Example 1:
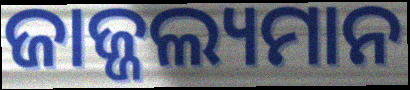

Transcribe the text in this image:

ଜାଜ୍ଜଲ୍ୟମାନ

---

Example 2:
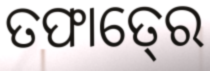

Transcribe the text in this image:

ତଫାତ୍‍ରେ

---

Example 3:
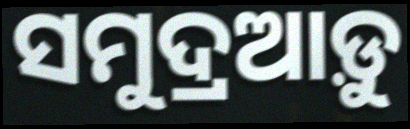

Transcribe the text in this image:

ସମୁଦ୍ରଆଡ଼ୁ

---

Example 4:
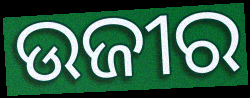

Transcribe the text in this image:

ଉଜୀର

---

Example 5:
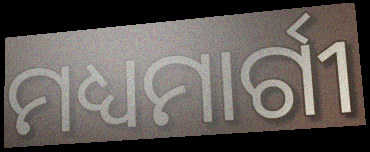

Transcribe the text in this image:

ମଧ୍ୟମାର୍ଗୀ